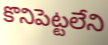
కొనిపెట్టలేని